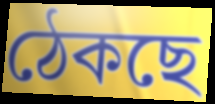
ঠেকছে